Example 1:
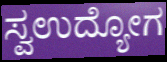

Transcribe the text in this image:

ಸ್ವಉದ್ಯೋಗ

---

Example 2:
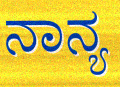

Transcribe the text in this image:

ನಾನ್ಯ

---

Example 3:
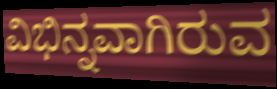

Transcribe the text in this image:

ವಿಭಿನ್ನವಾಗಿರುವ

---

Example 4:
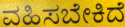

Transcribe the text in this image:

ವಹಿಸಬೇಕಿದೆ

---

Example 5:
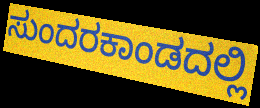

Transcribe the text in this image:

ಸುಂದರಕಾಂಡದಲ್ಲಿ